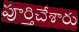
పూర్తిచేశారు